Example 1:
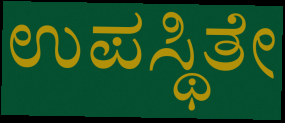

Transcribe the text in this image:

ಉಪಸ್ಥಿತೇ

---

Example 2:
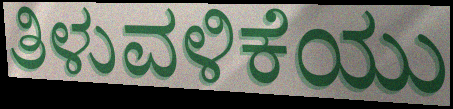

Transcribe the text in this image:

ತಿಳುವಳಿಕೆಯು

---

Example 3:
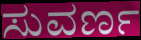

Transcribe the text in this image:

ಸುವರ್ಣ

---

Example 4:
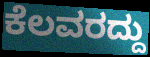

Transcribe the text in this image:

ಕೆಲವರದ್ದು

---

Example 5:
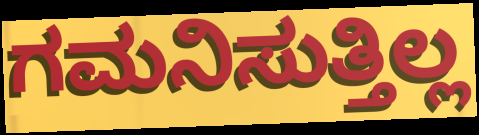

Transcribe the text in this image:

ಗಮನಿಸುತ್ತಿಲ್ಲ